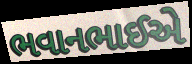
ભવાનભાઈએ